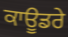
ਕਾਊਡਰੇ